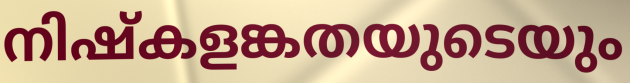
നിഷ്കളങ്കതയുടെയും